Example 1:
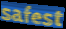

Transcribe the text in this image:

safest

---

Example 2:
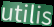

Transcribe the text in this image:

utilis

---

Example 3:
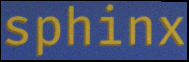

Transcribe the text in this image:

sphinx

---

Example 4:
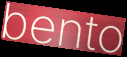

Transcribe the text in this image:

bento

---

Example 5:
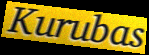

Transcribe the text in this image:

Kurubas